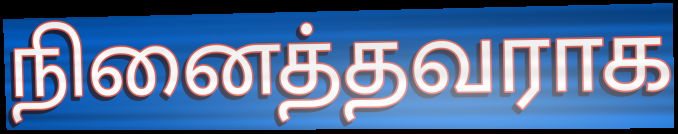
நினைத்தவராக